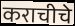
कराचीचे